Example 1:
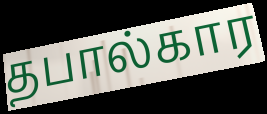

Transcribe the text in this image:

தபால்கார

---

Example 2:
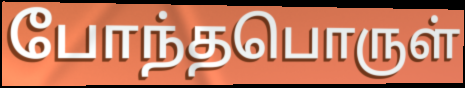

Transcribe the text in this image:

போந்தபொருள்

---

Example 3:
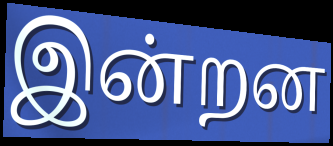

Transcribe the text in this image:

இன்றன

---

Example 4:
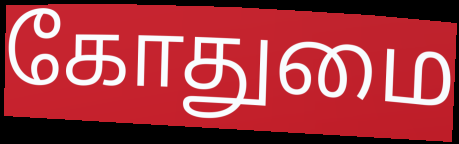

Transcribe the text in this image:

கோதுமை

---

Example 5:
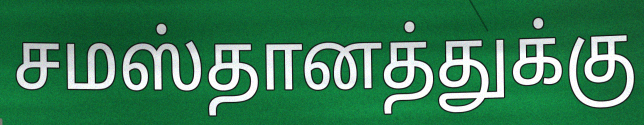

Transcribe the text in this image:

சமஸ்தானத்துக்கு